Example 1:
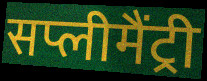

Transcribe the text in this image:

सप्लीमैंट्री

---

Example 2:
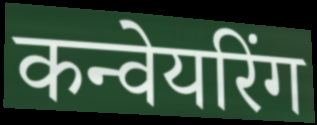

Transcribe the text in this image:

कन्वेयरिंग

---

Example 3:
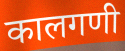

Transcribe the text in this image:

कालगणी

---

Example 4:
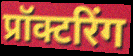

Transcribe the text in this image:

प्रॉक्टरिंग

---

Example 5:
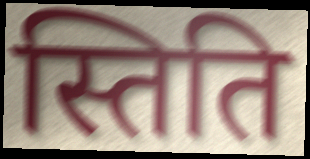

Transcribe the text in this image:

स्तिति